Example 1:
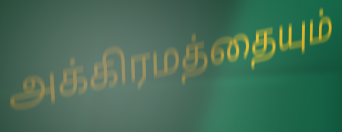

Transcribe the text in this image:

அக்கிரமத்தையும்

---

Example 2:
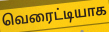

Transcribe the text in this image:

வெரைட்டியாக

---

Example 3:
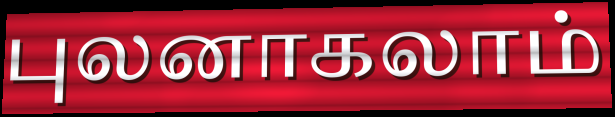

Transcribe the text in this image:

புலனாகலாம்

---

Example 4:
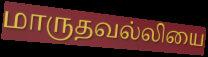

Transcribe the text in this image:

மாருதவல்லியை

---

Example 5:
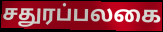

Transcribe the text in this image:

சதுரப்பலகை